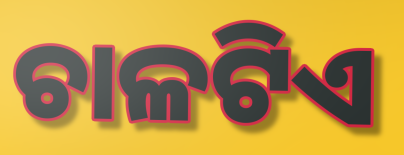
ଚାଳଟିଏ